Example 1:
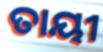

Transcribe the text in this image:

ତାୟୀ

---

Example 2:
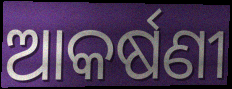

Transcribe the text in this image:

ଆକର୍ଷଣୀ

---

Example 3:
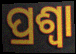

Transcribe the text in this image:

ପ୍ରଶ୍ଵା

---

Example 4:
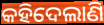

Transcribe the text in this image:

କହିଦେଲାଣି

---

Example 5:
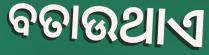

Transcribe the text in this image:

ବତାଉଥାଏ